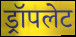
ड्रॉपलेट